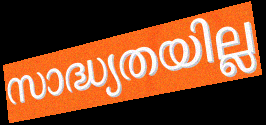
സാദ്ധ്യതയില്ല